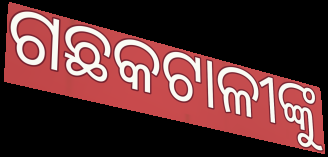
ଗଛକଟାଳୀଙ୍କୁ